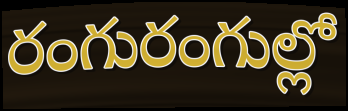
రంగురంగుల్లో